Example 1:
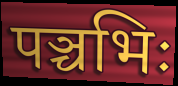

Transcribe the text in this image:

पञ्चभिः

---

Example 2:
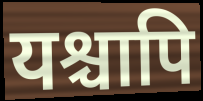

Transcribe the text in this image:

यश्चापि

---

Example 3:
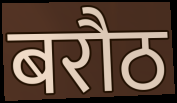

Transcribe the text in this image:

बरौठ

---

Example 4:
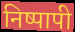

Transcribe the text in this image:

निष्पापी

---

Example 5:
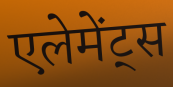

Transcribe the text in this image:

एलेमेंट्स